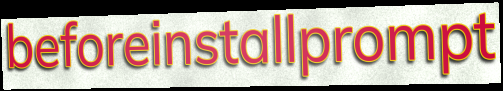
beforeinstallprompt